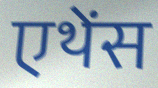
एथेंस